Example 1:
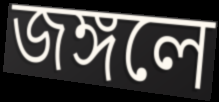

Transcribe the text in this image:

জঙ্গলে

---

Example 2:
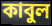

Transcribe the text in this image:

কাবুল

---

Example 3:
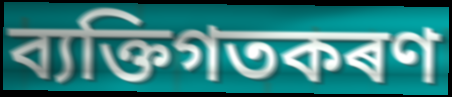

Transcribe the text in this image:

ব্যক্তিগতকৰণ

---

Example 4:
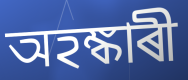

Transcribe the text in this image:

অহঙ্কাৰী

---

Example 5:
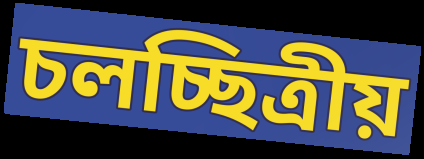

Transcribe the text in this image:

চলচ্ছিত্ৰীয়